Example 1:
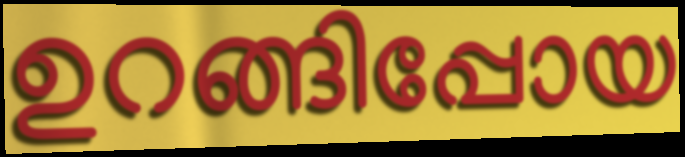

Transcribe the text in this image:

ഉറങ്ങിപ്പോയ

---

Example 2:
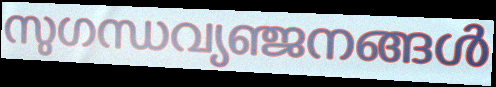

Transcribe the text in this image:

സുഗന്ധവ്യഞ്ജനങ്ങൾ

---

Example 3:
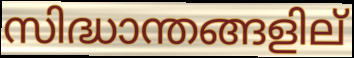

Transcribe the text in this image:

സിദ്ധാന്തങ്ങളില്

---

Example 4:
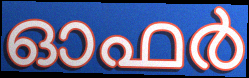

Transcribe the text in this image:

ഓഫർ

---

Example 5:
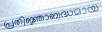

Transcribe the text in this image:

പ്രതിജ്ഞാബദ്ധമായ